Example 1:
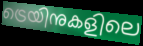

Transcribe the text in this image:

ട്രെയിനുകളിലെ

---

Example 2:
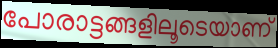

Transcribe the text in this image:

പോരാട്ടങ്ങളിലൂടെയാണ്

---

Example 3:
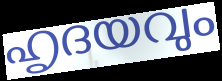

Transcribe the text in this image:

ഹൃദയവും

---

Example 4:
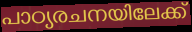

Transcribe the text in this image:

പാഠ്യരചനയിലേക്ക്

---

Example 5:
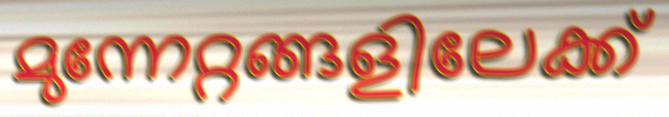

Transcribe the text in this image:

മുന്നേറ്റങ്ങളിലേക്ക്